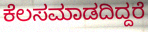
ಕೆಲಸಮಾಡದಿದ್ದರೆ